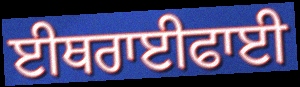
ਈਥਰਾਈਫਾਈ